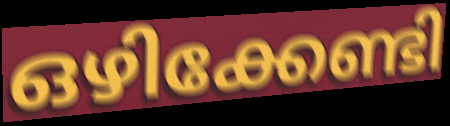
ഒഴിക്കേണ്ടി